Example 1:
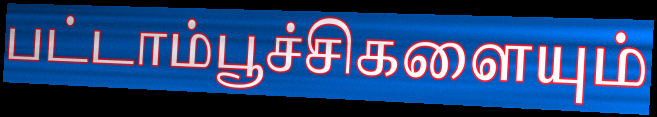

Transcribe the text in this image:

பட்டாம்பூச்சிகளையும்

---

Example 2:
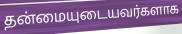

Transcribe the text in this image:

தன்மையுடையவர்களாக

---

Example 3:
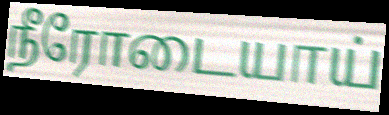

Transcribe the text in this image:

நீரோடையாய்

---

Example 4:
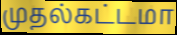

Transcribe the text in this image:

முதல்கட்டமா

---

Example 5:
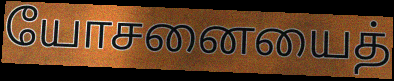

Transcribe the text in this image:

யோசனையைத்